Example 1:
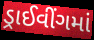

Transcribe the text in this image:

ડ્રાઈવીંગમાં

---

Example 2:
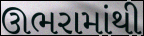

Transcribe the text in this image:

ઊભરામાંથી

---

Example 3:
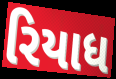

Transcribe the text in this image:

રિયાધ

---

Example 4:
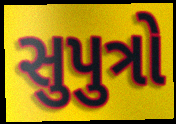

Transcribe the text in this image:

સુપુત્રો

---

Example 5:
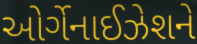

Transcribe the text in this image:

ઓર્ગેનાઈઝેશને